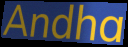
Andha